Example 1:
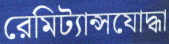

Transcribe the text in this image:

রেমিট্যান্সযোদ্ধা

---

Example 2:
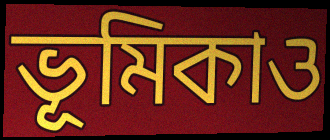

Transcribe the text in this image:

ভূমিকাও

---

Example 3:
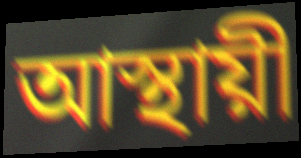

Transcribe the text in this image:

আস্থায়ী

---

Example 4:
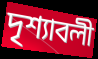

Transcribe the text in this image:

দৃশ্যাবলী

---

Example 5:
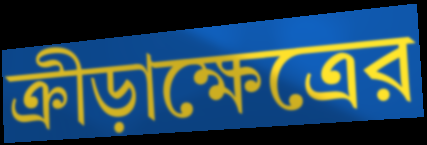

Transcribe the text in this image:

ক্রীড়াক্ষেত্রের